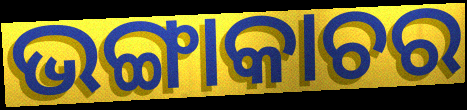
ଭଙ୍ଗାକାଚର